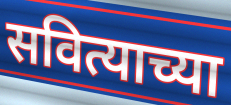
सवित्याच्या